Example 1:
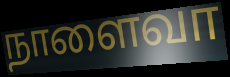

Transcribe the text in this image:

நாளைவா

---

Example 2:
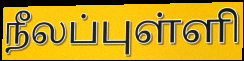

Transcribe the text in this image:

நீலப்புள்ளி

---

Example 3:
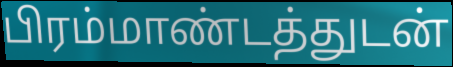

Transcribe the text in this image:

பிரம்மாண்டத்துடன்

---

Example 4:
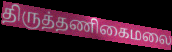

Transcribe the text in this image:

திருத்தணிகைமலை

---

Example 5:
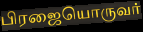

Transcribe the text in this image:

பிரஜையொருவர்